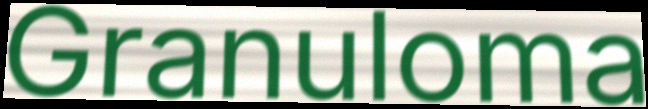
Granuloma